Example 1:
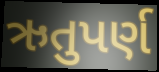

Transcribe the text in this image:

ઋતુપર્ણ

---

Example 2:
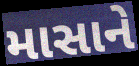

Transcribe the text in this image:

માસાને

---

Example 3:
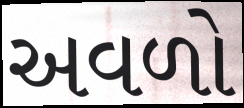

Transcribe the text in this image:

અવળો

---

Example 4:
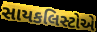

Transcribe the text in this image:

સાયકલિસ્ટોએ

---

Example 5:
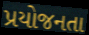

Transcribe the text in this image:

પ્રયોજનતા